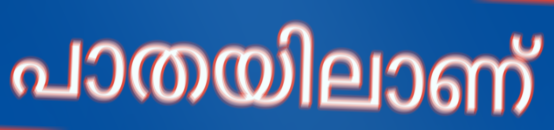
പാതയിലാണ്